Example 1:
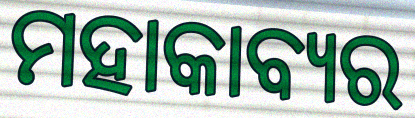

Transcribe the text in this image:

ମହାକାବ୍ୟର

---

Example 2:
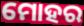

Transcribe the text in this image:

ମୋହର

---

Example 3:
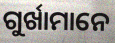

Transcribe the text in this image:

ଗୁର୍ଖାମାନେ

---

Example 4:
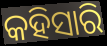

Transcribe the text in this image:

କହିସାରି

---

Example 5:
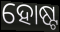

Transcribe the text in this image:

ହୋଷ୍ଟ